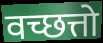
वच्छत्तो